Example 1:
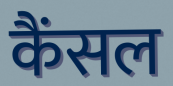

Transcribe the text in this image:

कैंसल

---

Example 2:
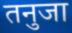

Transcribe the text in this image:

तनुजा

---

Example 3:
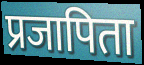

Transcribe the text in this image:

प्रजापिता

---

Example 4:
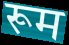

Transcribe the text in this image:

रूम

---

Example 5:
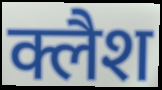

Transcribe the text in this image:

क्लैश